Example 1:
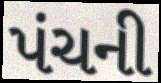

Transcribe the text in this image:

પંચની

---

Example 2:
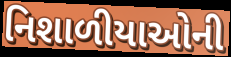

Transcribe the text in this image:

નિશાળીયાઓની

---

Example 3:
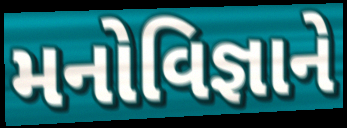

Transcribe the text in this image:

મનોવિજ્ઞાને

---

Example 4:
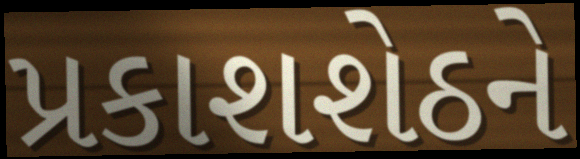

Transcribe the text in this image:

પ્રકાશશેઠને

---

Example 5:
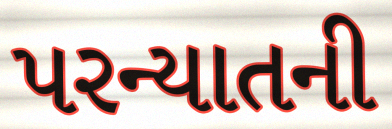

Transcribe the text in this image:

પરન્યાતની